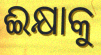
ଈକ୍ଷାକୁ